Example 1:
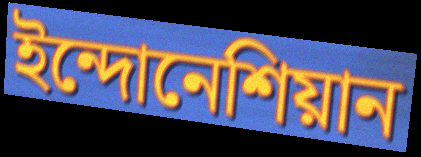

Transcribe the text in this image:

ইন্দোনেশিয়ান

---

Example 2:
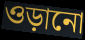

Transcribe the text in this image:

ওড়ানো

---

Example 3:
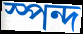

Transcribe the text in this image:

স্পন্দ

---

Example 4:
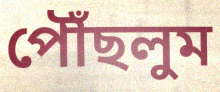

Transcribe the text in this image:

পৌঁছলুম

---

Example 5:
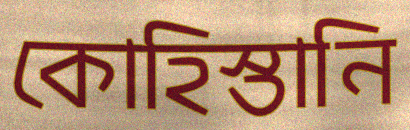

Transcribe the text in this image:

কোহিস্তানি